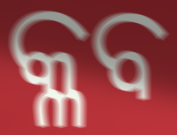
କ୍ଳବ